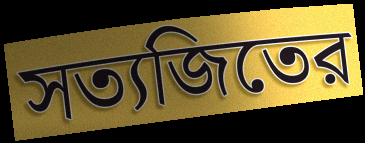
সত্যজিতের